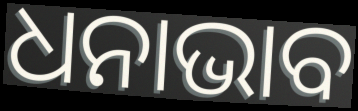
ଧନାଭାବ